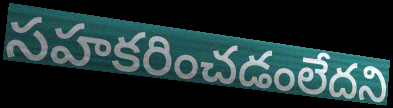
సహకరించడంలేదని